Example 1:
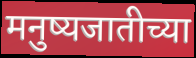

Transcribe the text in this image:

मनुष्यजातीच्या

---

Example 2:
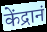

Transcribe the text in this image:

केंद्रानं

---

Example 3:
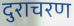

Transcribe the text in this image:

दुराचरण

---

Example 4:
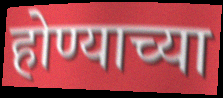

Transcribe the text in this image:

होण्‍याच्‍या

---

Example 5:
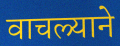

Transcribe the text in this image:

वाचल्याने